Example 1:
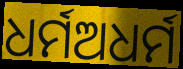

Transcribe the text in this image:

ଧର୍ମଅଧର୍ମ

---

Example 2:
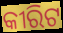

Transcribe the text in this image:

କୀରିଟ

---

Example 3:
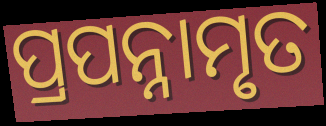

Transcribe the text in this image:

ପ୍ରପନ୍ନାମୃତ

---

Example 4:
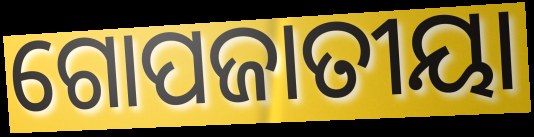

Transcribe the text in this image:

ଗୋପଜାତୀୟା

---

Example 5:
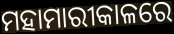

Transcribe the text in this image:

ମହାମାରୀକାଳରେ